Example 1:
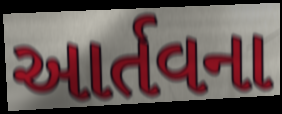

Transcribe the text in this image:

આર્તવના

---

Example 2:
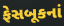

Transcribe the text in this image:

ફેસબૂકનાં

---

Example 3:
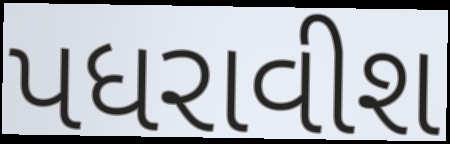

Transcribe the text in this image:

પધરાવીશ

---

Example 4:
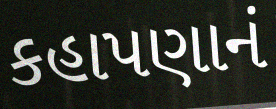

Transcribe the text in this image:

કહાપણાનં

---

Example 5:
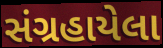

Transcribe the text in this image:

સંગ્રહાયેલા